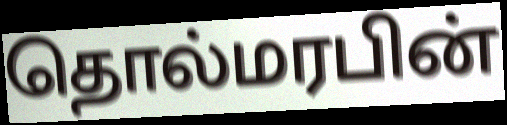
தொல்மரபின்